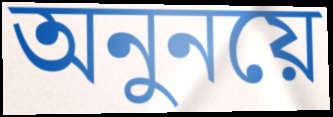
অনুনয়ে